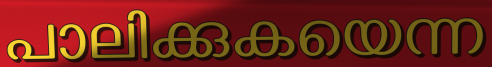
പാലിക്കുകയെന്ന